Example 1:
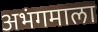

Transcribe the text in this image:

अभंगमाला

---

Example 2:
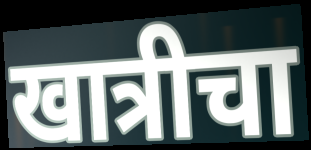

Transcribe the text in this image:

खात्रीचा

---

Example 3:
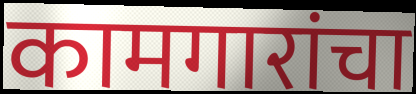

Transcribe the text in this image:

कामगारांचा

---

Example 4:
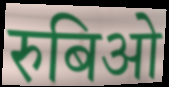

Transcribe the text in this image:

रुबिओ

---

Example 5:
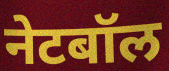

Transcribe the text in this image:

नेटबॉल